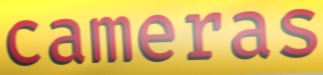
cameras